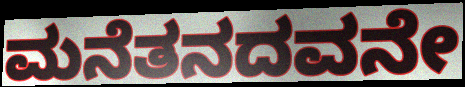
ಮನೆತನದವನೇ